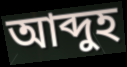
আব্দুহ